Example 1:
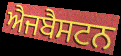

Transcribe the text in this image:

ਐਜਬੈਸਟਨ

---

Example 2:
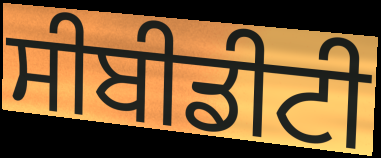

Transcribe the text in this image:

ਸੀਬੀਡੀਟੀ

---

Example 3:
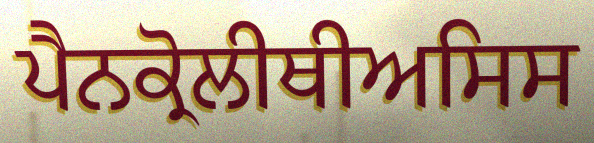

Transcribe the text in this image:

ਪੈਨਕ੍ਰੋਲੀਥੀਅਸਿਸ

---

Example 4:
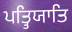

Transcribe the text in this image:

ਪਤ੍ਤਿਯਾਤਿ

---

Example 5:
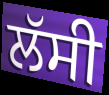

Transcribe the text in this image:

ਲੱਸੀ